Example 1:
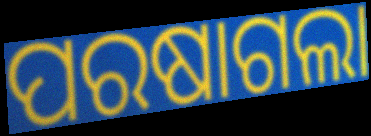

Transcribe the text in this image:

ପରଷାଗଲା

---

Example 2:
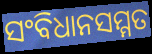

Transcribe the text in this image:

ସଂବିଧାନସମ୍ମତ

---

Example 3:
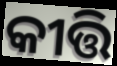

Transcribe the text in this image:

କୀତ୍ତି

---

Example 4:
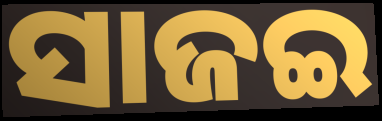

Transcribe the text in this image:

ସାଜଇ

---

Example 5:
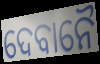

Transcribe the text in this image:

ଦେବାନୈ